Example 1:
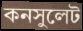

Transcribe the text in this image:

কনসুলেট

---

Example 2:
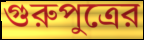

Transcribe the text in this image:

গুরুপুত্রের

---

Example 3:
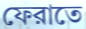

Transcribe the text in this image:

ফেরাতে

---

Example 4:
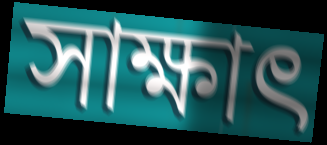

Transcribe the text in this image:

সাক্ষাৎ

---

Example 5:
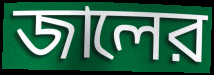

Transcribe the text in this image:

জালের